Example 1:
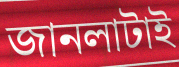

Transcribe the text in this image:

জানলাটাই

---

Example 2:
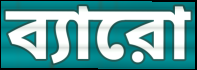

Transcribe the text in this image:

ব্যারো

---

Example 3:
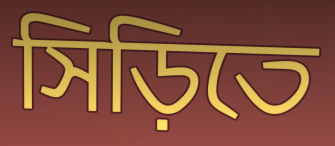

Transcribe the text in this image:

সিড়িতে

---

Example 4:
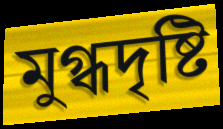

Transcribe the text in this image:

মুগ্ধদৃষ্টি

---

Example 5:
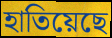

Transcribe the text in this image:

হাতিয়েছে